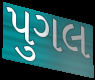
પુગલ